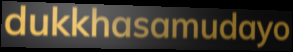
dukkhasamudayo